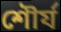
শৌর্য